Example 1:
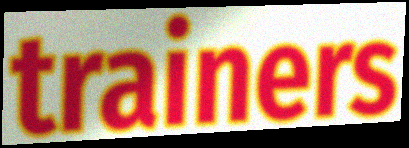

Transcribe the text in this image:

trainers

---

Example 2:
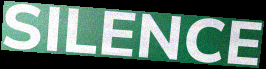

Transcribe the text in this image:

SILENCE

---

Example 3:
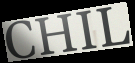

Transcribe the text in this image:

CHIL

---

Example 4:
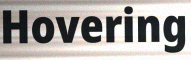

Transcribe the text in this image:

Hovering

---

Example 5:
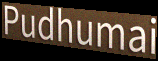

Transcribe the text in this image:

Pudhumai